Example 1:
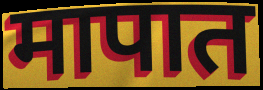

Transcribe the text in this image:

मापात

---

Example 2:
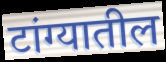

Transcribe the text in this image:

टांग्यातील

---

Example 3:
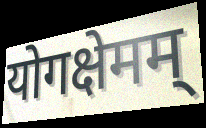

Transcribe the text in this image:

योगक्षेमम्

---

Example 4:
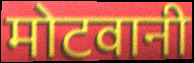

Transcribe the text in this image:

मोटवानी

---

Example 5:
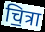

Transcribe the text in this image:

चि॒त्रा